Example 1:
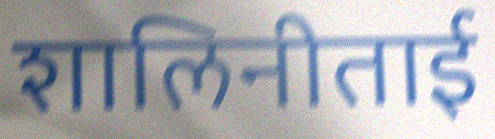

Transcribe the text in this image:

शालिनीताई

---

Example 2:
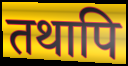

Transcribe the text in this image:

तथापि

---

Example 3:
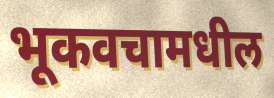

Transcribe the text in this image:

भूकवचामधील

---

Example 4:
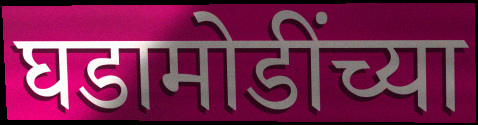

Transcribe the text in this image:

घडामोडींच्या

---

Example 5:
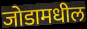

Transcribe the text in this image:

जोडामधील